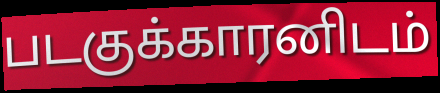
படகுக்காரனிடம்